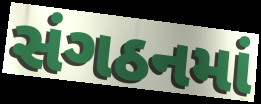
સંગઠનમાં